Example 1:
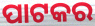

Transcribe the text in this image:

ପାଟକର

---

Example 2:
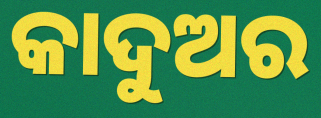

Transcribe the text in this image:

କାଦୁଅର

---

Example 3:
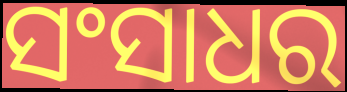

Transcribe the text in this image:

ସଂସାଧର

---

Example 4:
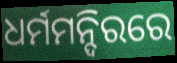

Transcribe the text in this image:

ଧର୍ମମନ୍ଦିରରେ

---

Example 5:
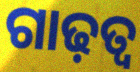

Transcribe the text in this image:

ଗାଢ଼ତ୍ବ